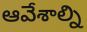
ఆవేశాల్ని